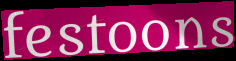
festoons